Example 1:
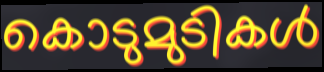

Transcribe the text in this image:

കൊടുമുടികൾ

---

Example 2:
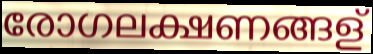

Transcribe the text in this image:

രോഗലക്ഷണങ്ങള്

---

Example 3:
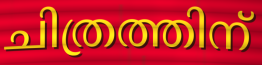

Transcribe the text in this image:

ചിത്രത്തിന്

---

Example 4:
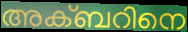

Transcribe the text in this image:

അക്ബറിനെ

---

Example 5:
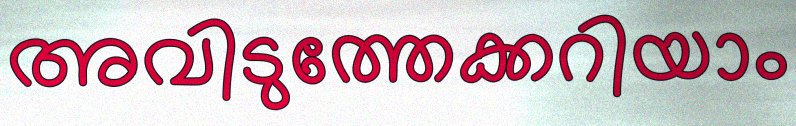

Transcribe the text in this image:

അവിടുത്തേക്കറിയാം